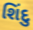
શિંદુ